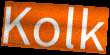
Kolk